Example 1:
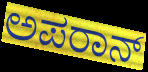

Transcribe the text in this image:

ಅಪರಾನ್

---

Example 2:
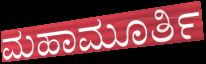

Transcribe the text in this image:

ಮಹಾಮೂರ್ತಿ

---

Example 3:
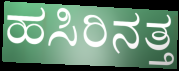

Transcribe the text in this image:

ಹಸಿರಿನತ್ತ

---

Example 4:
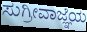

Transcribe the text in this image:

ಸುಗ್ರೀವಾಜ್ಞೆಯ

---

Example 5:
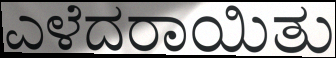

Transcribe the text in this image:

ಎಳೆದರಾಯಿತು